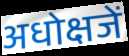
अधोक्षजें